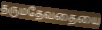
தருமதேவதையை